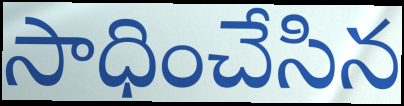
సాధించేసిన